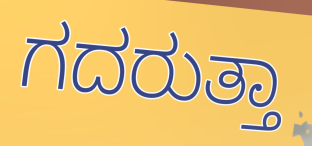
ಗದರುತ್ತಾ